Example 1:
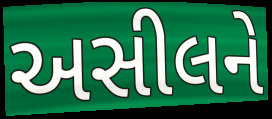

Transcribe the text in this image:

અસીલને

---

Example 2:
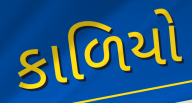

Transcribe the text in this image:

કાળિયો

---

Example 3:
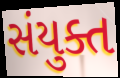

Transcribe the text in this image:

સંયુક્ત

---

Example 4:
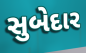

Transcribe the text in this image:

સુબેદાર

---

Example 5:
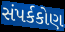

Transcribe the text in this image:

સંપર્કકોણ